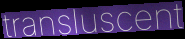
transluscent